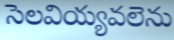
సెలవియ్యవలెను